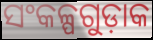
ସଂକଳ୍ପଗୁଡ଼ାକ